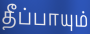
தீப்பாயும்